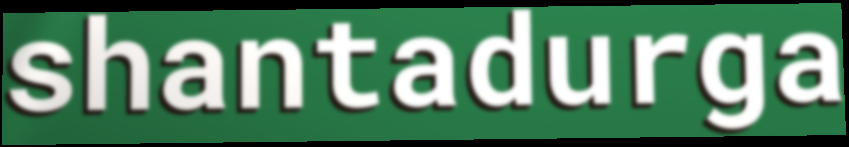
shantadurga